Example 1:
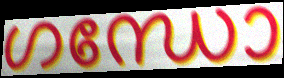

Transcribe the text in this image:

ഗന്ധോ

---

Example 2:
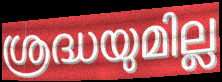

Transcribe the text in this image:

ശ്രദ്ധയുമില്ല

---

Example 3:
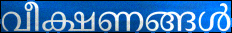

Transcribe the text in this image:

വീക്ഷണങ്ങൾ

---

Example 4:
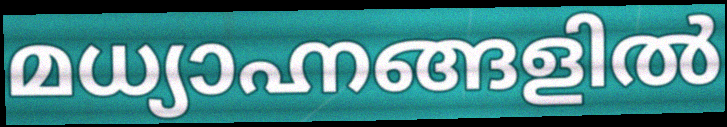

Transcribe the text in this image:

മധ്യാഹ്നങ്ങളിൽ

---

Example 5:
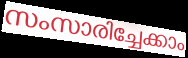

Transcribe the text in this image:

സംസാരിച്ചേക്കാം